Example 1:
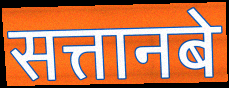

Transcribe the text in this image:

सत्तानबे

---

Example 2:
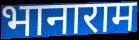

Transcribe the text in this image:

भानाराम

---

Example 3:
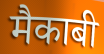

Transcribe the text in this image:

मैकाबी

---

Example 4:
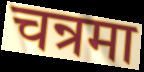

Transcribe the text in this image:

चन्रमा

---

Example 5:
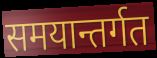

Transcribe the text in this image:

समयान्तर्गत